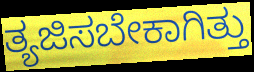
ತ್ಯಜಿಸಬೇಕಾಗಿತ್ತು